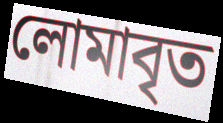
লোমাবৃত